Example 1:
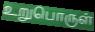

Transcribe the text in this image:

உறுபொருள்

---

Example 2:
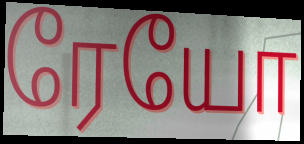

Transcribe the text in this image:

ரேயோ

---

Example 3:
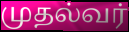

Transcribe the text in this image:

முதல்வர்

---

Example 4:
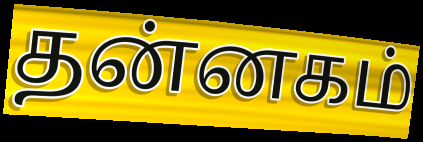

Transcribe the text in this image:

தன்னகம்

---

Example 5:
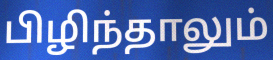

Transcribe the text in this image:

பிழிந்தாலும்